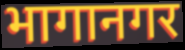
भागानगर